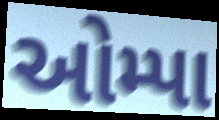
ઓમ્પા